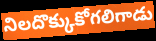
నిలదొక్కుకోగలిగాడు